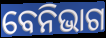
ବେନିଭାଗ